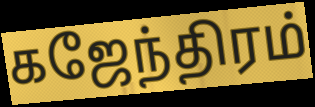
கஜேந்திரம்